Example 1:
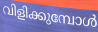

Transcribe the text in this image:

വിളിക്കുമ്പോൾ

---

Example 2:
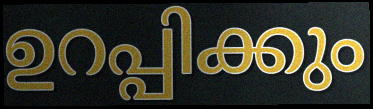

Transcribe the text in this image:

ഉറപ്പിക്കും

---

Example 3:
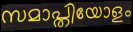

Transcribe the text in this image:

സമാപ്തിയോളം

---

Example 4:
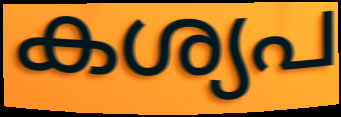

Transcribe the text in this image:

കശ്യപ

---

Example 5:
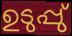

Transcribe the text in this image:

ഉടുപ്പു്